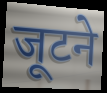
जूटने